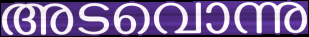
അടവൊന്നു